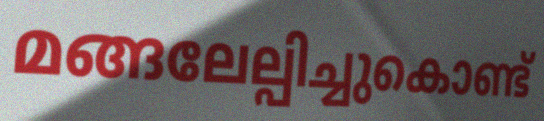
മങ്ങലേല്പിച്ചുകൊണ്ട്